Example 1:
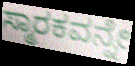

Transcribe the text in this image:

ಸ್ಮಾರಕವನ್ನೇ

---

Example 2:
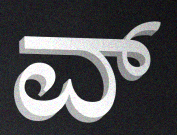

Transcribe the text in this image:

ವ್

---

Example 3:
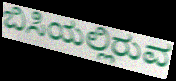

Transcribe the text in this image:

ಬಿಸಿಯಲ್ಲಿರುವ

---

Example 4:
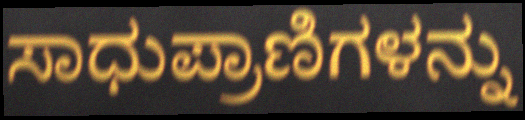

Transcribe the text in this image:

ಸಾಧುಪ್ರಾಣಿಗಳನ್ನು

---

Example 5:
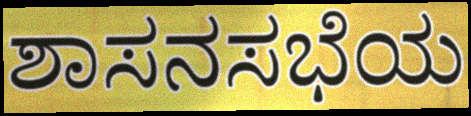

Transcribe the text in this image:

ಶಾಸನಸಭೆಯ